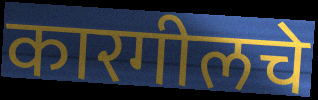
कारगीलचे